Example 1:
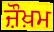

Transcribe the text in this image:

ਜ਼ੌਖ਼ਮ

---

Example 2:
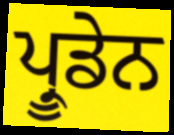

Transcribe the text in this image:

ਪ੍ਰੂਡੇਨ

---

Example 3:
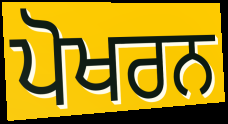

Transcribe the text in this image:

ਪੋਖਰਨ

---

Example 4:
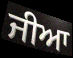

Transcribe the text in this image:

ਜੀਆ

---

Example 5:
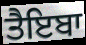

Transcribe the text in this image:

ਤੈਇਬਾ